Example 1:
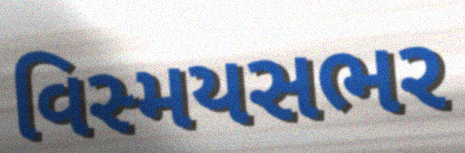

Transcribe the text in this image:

વિસ્મયસભર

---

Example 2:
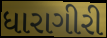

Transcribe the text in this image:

ધારાગીરી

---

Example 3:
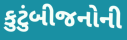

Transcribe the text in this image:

કુટુંબીજનોની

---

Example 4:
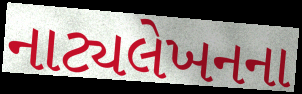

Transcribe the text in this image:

નાટ્યલેખનના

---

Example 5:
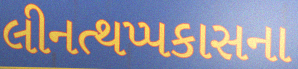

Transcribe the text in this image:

લીનત્થપ્પકાસના